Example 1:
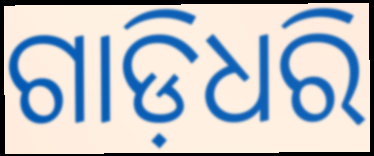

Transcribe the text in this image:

ଗାଡ଼ିଧରି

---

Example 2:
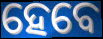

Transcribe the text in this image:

ହେବେ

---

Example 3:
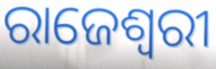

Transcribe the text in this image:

ରାଜେଶ୍ଵରୀ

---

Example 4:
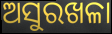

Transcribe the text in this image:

ଅସୁରଖଳା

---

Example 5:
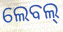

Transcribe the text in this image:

ଲେବଲ୍